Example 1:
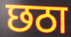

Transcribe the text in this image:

छठा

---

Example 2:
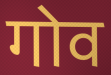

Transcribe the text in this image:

गोव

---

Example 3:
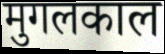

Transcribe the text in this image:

मुगलकाल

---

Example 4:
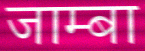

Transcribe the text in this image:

जाम्बा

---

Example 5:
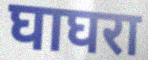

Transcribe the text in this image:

घाघरा